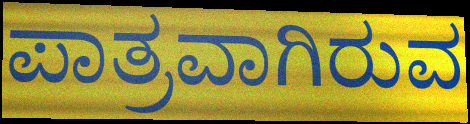
ಪಾತ್ರವಾಗಿರುವ